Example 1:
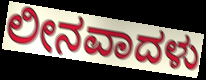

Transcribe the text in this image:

ಲೀನವಾದಳು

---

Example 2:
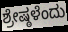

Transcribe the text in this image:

ಶ್ರೇಷ್ಠಳೆಂದು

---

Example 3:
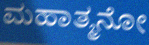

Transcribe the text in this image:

ಮಹಾತ್ಮನೋ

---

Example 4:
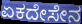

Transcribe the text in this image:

ಏಕದೇಸೇನ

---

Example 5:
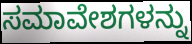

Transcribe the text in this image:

ಸಮಾವೇಶಗಳನ್ನು